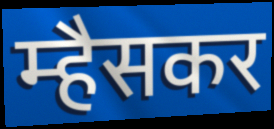
म्हैसकर